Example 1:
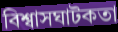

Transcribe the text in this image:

বিশ্বাসঘাটকতা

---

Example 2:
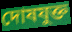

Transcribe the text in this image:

দোষযুক্ত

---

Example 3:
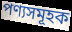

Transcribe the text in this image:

পণ্যসমূহক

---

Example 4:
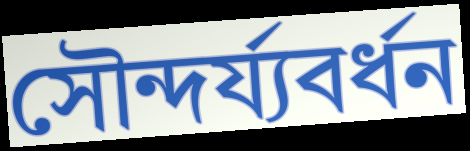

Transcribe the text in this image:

সৌন্দৰ্য্যবৰ্ধন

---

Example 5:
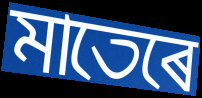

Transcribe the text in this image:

মাতেৰে